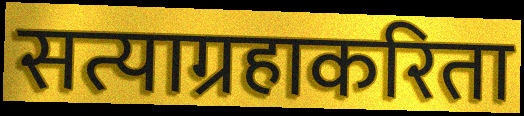
सत्याग्रहाकरिता